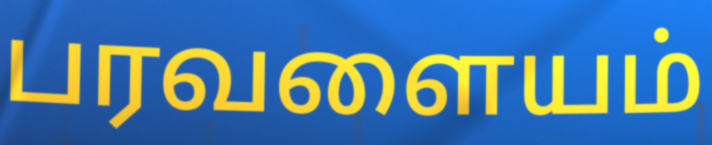
பரவளையம்